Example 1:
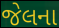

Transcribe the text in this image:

જેલના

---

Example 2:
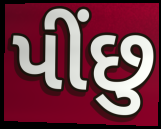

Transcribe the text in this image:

પીંછુ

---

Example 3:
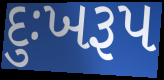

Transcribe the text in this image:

દુઃખરૂપ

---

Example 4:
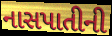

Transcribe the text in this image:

નાસપાતીની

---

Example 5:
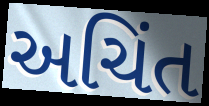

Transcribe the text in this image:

અચિંત